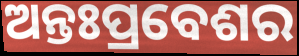
ଅନ୍ତଃପ୍ରବେଶର